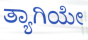
ತ್ಯಾಗಿಯೇ